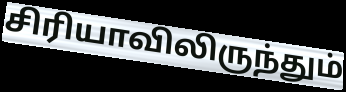
சிரியாவிலிருந்தும்